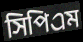
সিপিএম